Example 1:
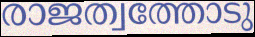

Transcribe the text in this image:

രാജത്വത്തോടു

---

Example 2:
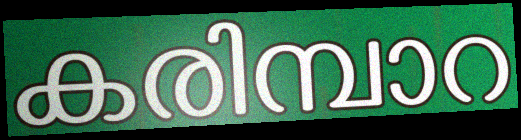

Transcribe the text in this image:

കരിമ്പാറ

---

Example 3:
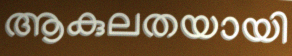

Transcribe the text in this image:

ആകുലതയായി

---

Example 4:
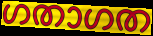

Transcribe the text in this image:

ഗതാഗത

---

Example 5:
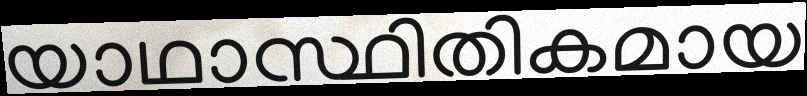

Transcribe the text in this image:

യാഥാസ്ഥിതികമായ